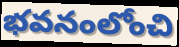
భవనంలోంచి